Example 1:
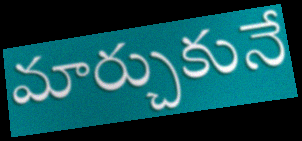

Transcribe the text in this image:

మార్చుకునే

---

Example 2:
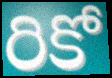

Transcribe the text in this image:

రికో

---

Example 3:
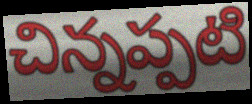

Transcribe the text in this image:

చిన్నప్పటి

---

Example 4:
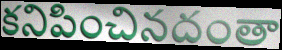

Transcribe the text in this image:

కనిపించినదంతా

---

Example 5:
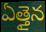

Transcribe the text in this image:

ఏత్తైన